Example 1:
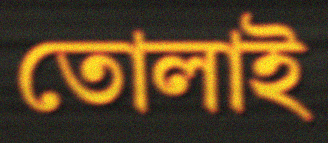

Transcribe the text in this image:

তোলাই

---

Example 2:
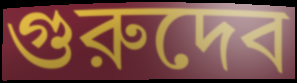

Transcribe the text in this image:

গুরুদেব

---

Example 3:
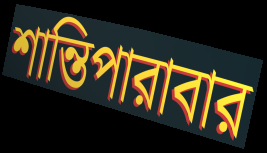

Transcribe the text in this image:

শান্তিপারাবার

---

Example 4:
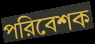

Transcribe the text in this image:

পরিবেশক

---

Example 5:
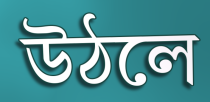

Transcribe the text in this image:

উঠলে